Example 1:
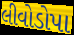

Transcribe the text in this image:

લીવોડોપા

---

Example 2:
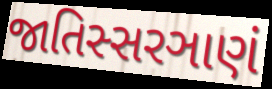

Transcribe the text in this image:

જાતિસ્સરઞાણં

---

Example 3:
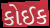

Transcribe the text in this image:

કોઈક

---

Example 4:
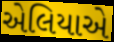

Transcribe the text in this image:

એલિયાએ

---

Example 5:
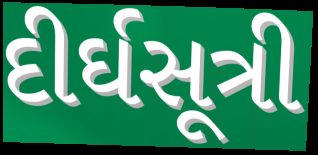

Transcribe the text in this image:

દીર્ઘસૂત્રી